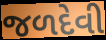
જળદેવી